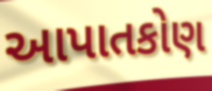
આપાતકોણ